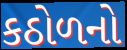
કઠોળનો